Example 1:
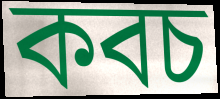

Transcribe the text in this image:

কবচ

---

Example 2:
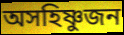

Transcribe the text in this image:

অসহিষ্ণুজন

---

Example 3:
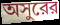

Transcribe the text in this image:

অসুরের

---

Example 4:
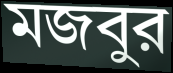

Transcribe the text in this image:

মজবুর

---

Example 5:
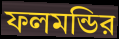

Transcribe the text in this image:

ফলমন্ডির